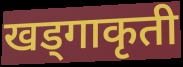
खड्गाकृती